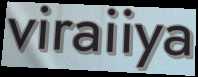
viraiiya